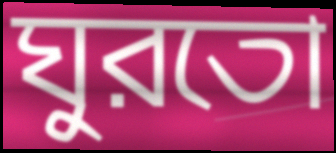
ঘুরতো